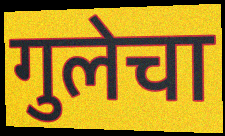
गुलेचा